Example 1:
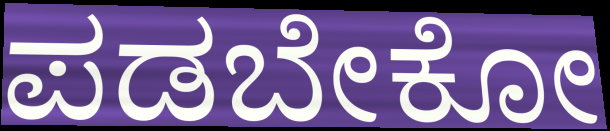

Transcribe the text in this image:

ಪಡಬೇಕೋ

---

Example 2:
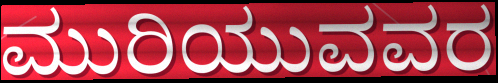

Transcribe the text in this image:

ಮುರಿಯುವವರ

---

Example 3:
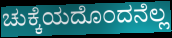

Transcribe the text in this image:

ಚುಕ್ಕೆಯದೊಂದನೆಲ್ಲ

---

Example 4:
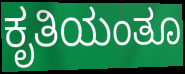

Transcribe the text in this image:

ಕೃತಿಯಂತೂ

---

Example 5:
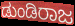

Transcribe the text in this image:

ಡುಂಡಿರಾಜ